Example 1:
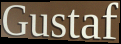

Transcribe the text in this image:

Gustaf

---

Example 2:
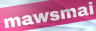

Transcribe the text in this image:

mawsmai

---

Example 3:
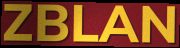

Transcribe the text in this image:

ZBLAN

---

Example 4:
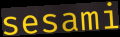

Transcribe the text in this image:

sesami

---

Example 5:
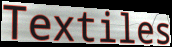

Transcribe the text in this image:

Textiles